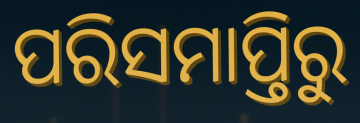
ପରିସମାପ୍ତିରୁ